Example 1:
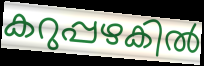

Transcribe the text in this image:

കറുപ്പഴകിൽ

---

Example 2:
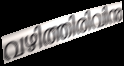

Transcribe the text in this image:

വഴിത്തിരിവിനു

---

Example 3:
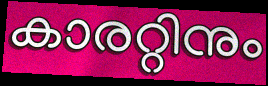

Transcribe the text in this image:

കാരറ്റിനും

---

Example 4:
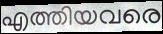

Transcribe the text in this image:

എത്തിയവരെ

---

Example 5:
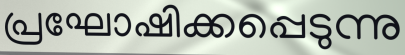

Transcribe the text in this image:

പ്രഘോഷിക്കപ്പെടുന്നു